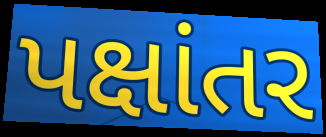
પક્ષાંતર